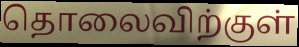
தொலைவிற்குள்